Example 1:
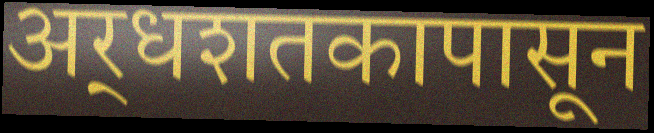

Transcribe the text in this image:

अर्धशतकापासून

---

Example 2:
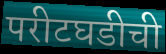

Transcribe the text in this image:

परीटघडीची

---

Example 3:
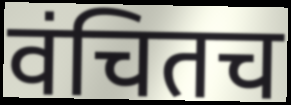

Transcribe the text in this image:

वंचितच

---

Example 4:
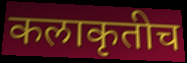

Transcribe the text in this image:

कलाकृतीच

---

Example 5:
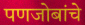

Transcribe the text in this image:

पणजोबांचे